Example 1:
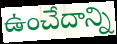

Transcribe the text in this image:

ఉంచేదాన్ని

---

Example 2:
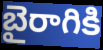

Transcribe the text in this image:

బైరాగికి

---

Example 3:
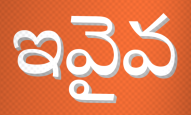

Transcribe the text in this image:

ఇవైవ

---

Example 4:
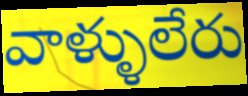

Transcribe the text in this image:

వాళ్ళులేరు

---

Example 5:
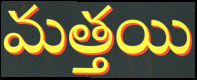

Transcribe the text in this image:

మత్తయి